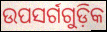
ଉପସର୍ଗଗୁଡ଼ିକ